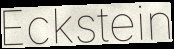
Eckstein